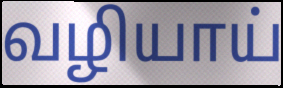
வழியாய்